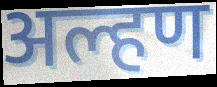
अल्हण